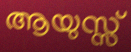
ആയുസ്സ്